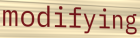
modifying